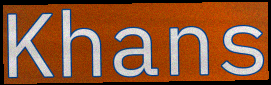
Khans